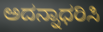
ಅದನ್ನಾಧರಿಸಿ